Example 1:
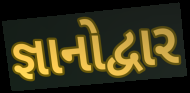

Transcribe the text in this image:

જ્ઞાનોદ્વાર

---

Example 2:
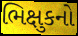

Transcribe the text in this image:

ભિક્ષુકનો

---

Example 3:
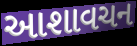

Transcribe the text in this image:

આશાવચન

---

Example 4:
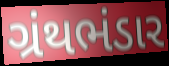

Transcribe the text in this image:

ગ્રંથભંડાર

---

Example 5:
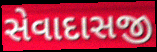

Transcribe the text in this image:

સેવાદાસજી